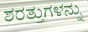
ಶರತ್ತುಗಳನ್ನು